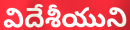
విదేశీయుని